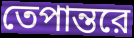
তেপান্তরে